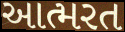
આત્મરત